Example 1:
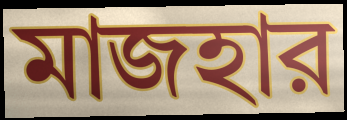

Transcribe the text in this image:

মাজহার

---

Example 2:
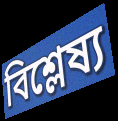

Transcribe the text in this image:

বিশ্লেষ্য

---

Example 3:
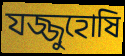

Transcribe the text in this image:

যজ্জুহোষি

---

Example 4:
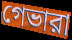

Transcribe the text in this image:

গেভারা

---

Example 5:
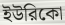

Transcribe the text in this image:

ইউরিকো